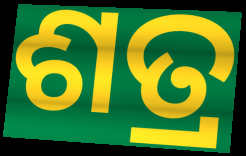
ଶତ୍ର